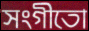
সংগীতো